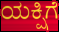
ಯಕ್ಷಿಗೆ